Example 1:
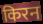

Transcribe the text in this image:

किरन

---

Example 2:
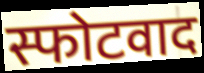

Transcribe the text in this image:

स्फोटवाद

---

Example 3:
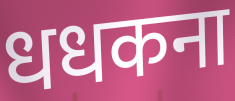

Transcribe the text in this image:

धधकना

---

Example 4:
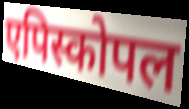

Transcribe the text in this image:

एपिस्कोपल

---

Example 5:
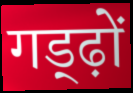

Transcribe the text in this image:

गड्‌ढ़ों